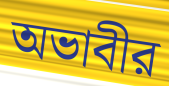
অভাবীর